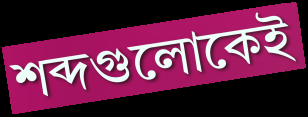
শব্দগুলোকেই